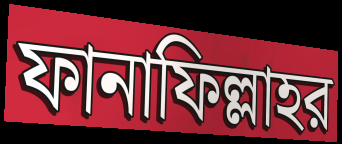
ফানাফিল্লাহর